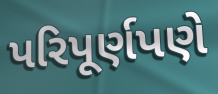
પરિપૂર્ણપણે